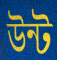
উন্ট